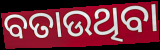
ବତାଉଥିବା